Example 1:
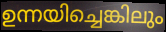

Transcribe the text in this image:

ഉന്നയിച്ചെങ്കിലും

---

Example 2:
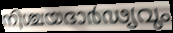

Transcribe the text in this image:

നിശ്ചയദാർഢ്യവും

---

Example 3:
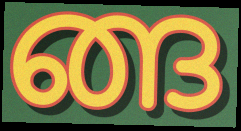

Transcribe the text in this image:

ങ്ങ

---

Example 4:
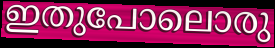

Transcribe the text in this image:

ഇതുപോലൊരു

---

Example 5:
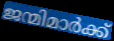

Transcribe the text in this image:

ജന്മിമാർക്ക്